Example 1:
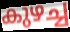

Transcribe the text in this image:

കുഴച്ച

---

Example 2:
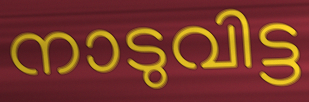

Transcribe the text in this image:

നാടുവിട്ട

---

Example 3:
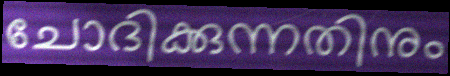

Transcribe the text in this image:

ചോദിക്കുന്നതിനും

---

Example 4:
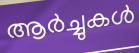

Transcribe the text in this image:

ആർച്ചുകൾ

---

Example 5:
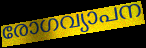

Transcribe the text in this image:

രോഗവ്യാപന